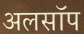
अलसॉप